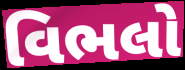
વિભલો